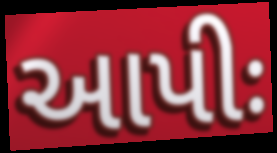
આપીઃ